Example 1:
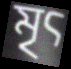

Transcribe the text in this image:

মৃৎ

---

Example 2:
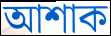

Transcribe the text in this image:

আশাক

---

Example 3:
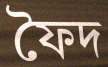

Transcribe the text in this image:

ফৈদ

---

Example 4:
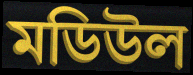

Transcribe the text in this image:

মডিউল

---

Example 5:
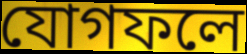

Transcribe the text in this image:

যোগফলে